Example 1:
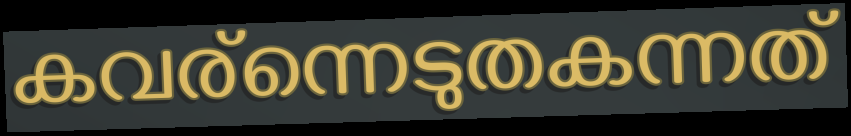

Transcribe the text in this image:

കവര്ന്നെടുതകന്നത്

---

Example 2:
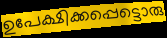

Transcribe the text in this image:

ഉപേക്ഷിക്കപ്പെട്ടൊരു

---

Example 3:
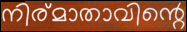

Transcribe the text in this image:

നിര്മാതാവിന്റെ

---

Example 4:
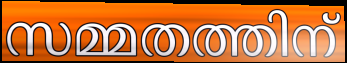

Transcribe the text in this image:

സമ്മതത്തിന്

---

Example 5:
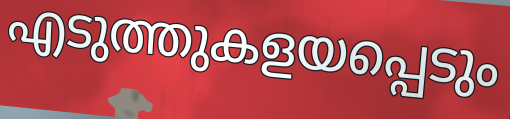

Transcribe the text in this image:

എടുത്തുകളയപ്പെടും